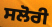
ਸਲੋਰੀ